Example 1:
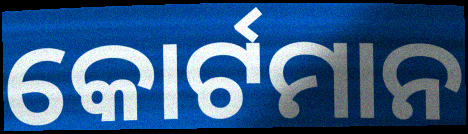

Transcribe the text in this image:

କୋର୍ଟମାନ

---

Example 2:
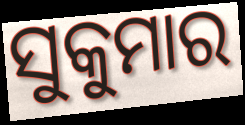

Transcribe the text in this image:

ସୁକୁମାର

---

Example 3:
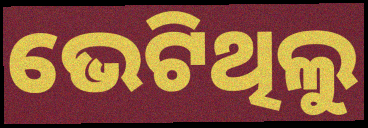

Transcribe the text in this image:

ଭେଟିଥିଲୁ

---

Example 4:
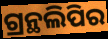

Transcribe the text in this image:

ଗ୍ରନ୍ଥଲିପିର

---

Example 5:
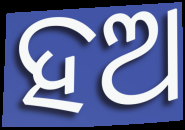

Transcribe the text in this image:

ହଅ